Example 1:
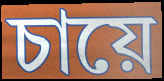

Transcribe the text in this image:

চায়ে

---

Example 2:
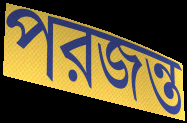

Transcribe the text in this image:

পরজন্ত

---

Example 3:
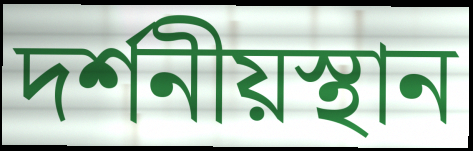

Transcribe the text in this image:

দর্শনীয়স্থান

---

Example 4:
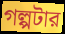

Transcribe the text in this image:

গল্পটার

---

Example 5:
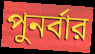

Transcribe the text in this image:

পুনর্বার